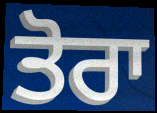
ਤੋਰਾ